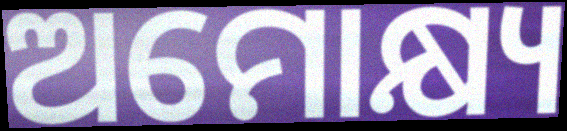
ଅମୋକ୍ଷ୍ୟ